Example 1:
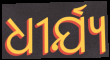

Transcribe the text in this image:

ଧୀର୍ଯ୍ୟ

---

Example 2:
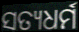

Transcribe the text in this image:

ସତ୍ୟଧର୍ମ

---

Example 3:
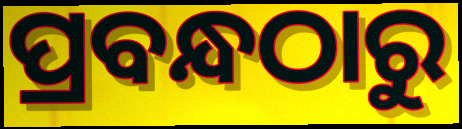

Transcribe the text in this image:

ପ୍ରବନ୍ଧଠାରୁ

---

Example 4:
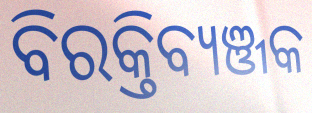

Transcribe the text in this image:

ବିରକ୍ତିବ୍ୟଞ୍ଜକ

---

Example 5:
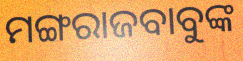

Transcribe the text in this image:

ମଙ୍ଗରାଜବାବୁଙ୍କ